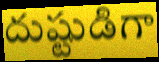
దుష్టుడిగా